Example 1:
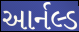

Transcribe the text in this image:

આર્નલ્ડ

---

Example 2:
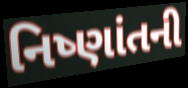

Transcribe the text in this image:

નિષ્ણાંતની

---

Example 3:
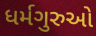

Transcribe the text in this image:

ધર્મગુરુઓ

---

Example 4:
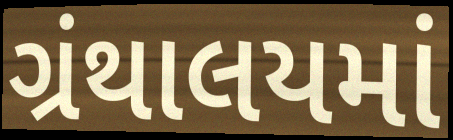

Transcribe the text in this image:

ગ્રંથાલયમાં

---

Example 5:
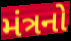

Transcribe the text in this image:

મંત્રનો